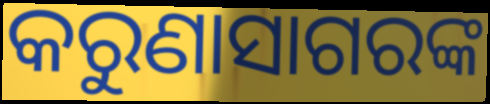
କରୁଣାସାଗରଙ୍କ